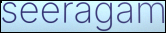
seeragam